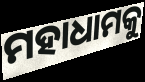
ମହାଧାମକୁ